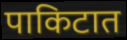
पाकिटात